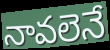
నావలెనే